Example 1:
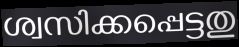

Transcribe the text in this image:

ശ്വസിക്കപ്പെട്ടതു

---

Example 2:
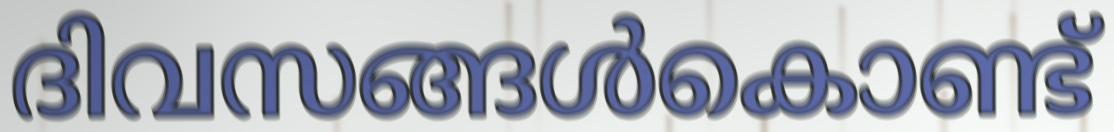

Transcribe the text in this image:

ദിവസങ്ങൾകൊണ്ട്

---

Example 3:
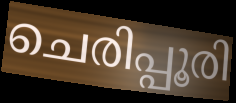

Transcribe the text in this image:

ചെരിപ്പൂരി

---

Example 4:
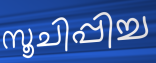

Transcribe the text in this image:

സൂചിപ്പിച്ച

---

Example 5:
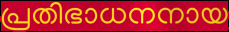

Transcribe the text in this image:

പ്രതിഭാധനനായ